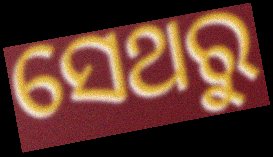
ସେଥରୁ